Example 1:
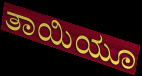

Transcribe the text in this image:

ತಾಯಿಯೂ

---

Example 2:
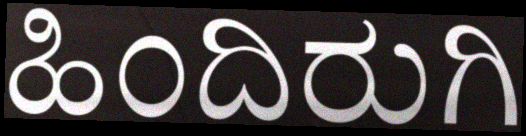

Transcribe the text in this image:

ಹಿಂದಿರುಗಿ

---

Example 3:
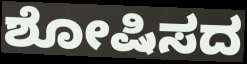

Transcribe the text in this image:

ಶೋಷಿಸದ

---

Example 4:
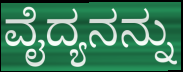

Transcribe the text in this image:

ವೈದ್ಯನನ್ನು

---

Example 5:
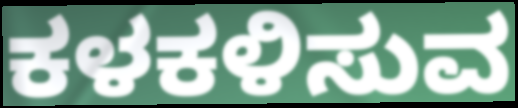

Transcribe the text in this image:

ಕಳಕಳಿಸುವ